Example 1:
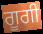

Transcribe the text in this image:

ਗੂਗੀ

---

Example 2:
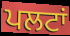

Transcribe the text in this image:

ਪਲਟਾਂ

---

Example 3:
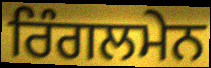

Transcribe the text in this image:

ਰਿੰਗਲਮੇਨ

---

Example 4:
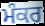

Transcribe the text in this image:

ਮੰਕਰ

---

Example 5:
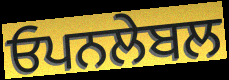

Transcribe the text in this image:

ਓਪਨਲੇਬਲ